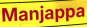
Manjappa